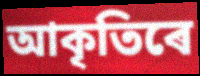
আকৃতিৰে